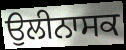
ਉਲੀਨਾਸਕ